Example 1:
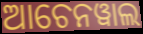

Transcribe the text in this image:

ଆଚେନୱାଲ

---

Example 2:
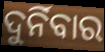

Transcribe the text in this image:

ଦୁର୍ନିବାର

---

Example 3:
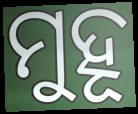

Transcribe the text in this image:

ମୁହୂ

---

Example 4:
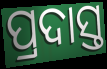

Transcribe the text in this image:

ପ୍ରଦାସ୍ତ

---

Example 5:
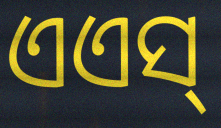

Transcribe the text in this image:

ଏଏସ୍